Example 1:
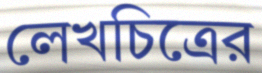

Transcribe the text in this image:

লেখচিত্রের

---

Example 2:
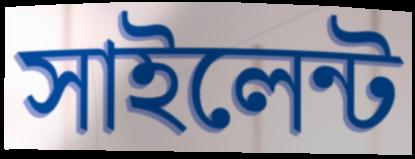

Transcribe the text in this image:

সাইলেন্ট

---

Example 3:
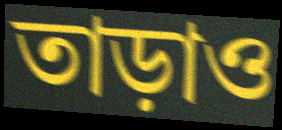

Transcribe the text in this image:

তাড়াও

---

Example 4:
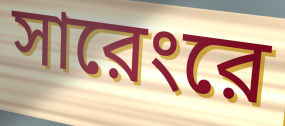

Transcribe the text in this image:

সারেংরে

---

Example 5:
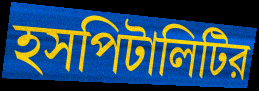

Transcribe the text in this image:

হসপিটালিটির